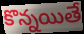
కొన్నయితే